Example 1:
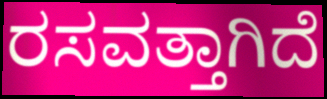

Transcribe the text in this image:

ರಸವತ್ತಾಗಿದೆ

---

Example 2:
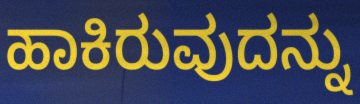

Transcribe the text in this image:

ಹಾಕಿರುವುದನ್ನು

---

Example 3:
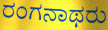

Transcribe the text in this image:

ರಂಗನಾಥರು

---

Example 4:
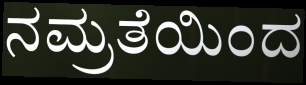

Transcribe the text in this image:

ನಮ್ರತೆಯಿಂದ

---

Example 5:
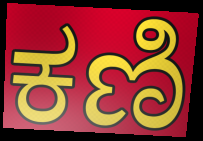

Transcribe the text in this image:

ಕಣಿ